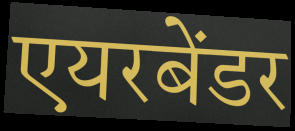
एयरबेंडर